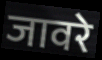
जावरे